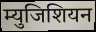
म्‍युजिशियन